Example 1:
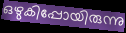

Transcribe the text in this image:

ഒഴുകിപ്പോയിരുന്നു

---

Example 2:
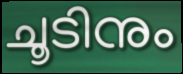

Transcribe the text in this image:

ചൂടിനും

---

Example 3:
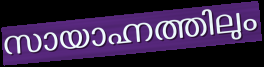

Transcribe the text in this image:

സായാഹ്നത്തിലും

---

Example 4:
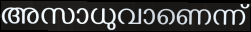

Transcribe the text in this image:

അസാധുവാണെന്ന്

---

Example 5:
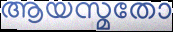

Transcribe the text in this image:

ആയസ്മതോ